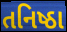
તનિષ્ઠા